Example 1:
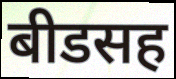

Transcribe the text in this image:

बीडसह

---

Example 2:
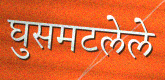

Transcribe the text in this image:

घुसमटलेले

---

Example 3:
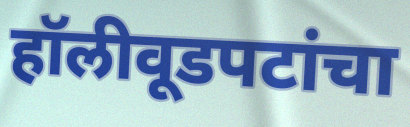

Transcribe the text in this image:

हॉलीवूडपटांचा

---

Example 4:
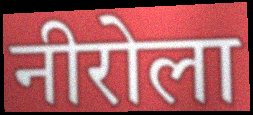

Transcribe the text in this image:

नीरोला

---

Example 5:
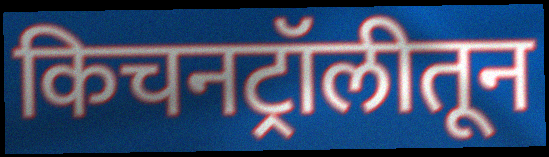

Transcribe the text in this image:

किचनट्रॉलीतून